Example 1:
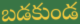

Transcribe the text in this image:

బడకుండ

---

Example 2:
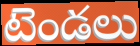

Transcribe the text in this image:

టెండలు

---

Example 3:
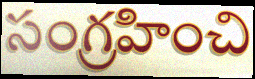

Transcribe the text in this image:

సంగ్రహించి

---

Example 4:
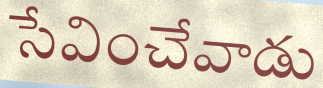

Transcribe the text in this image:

సేవించేవాడు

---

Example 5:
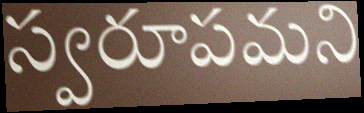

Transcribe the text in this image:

స్వరూపమని